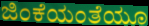
ಜಿಂಕೆಯಂತೆಯೂ